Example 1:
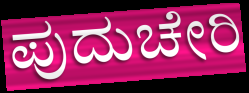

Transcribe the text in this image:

ಪುದುಚೇರಿ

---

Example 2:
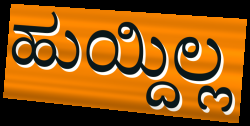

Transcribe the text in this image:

ಹುಯ್ದಿಲ್ಲ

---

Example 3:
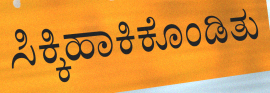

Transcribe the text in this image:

ಸಿಕ್ಕಿಹಾಕಿಕೊಂಡಿತು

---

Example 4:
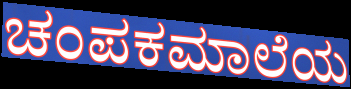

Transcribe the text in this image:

ಚಂಪಕಮಾಲೆಯ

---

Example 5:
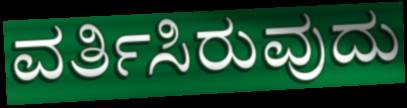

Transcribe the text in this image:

ವರ್ತಿಸಿರುವುದು